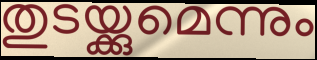
തുടയ്ക്കുമെന്നും